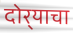
दोर्‍याचा